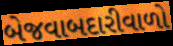
બેજવાબદારીવાળો